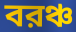
বরঞ্চ